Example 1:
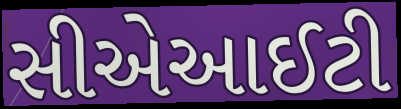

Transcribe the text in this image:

સીએઆઈટી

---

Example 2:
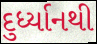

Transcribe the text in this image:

દુર્ધ્યાનથી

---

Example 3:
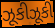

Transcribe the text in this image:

ઝૂકીઝૂકી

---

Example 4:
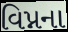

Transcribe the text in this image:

વિપ્નના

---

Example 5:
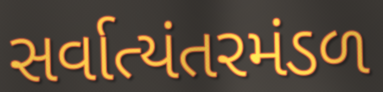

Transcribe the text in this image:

સર્વાત્યંતરમંડળ